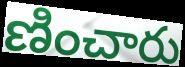
ణించారు